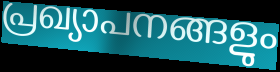
പ്രഖ്യാപനങ്ങളും